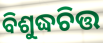
ବିଶୁଦ୍ଧଚିତ୍ତ